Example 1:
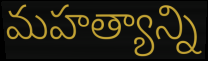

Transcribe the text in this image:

మహత్యాన్ని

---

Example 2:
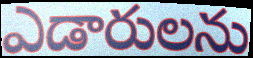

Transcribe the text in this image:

ఎడారులను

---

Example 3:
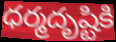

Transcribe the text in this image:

ధర్మదృష్టికి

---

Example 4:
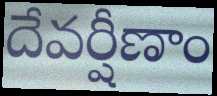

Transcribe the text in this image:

దేవర్షీణాం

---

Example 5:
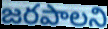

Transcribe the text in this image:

జరపాలని